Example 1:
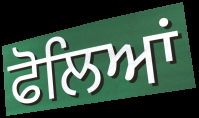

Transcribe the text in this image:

ਫੋਲਿਆਂ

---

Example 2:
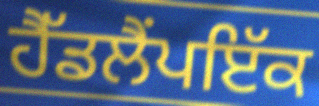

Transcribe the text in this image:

ਹੈੱਡਲੈਂਪਇੱਕ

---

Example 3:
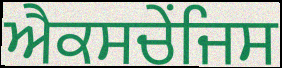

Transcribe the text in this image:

ਐਕਸਚੇਂਜਿਸ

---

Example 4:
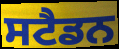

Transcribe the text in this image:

ਸਟੈਡਨ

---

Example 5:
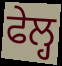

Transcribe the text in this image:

ਫੇਲ੍ਹ